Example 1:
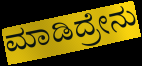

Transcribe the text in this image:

ಮಾಡಿದ್ರೇನು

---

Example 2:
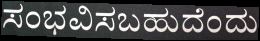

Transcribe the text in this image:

ಸಂಭವಿಸಬಹುದೆಂದು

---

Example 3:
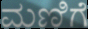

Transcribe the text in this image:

ಮಣಿಗೆ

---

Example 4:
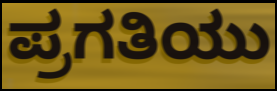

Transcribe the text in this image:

ಪ್ರಗತಿಯು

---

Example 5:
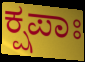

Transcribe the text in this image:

ಕ್ಷಪಾಃ